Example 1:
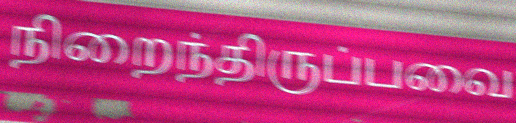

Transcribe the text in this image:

நிறைந்திருப்பவை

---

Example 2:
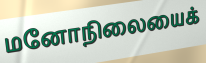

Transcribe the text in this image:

மனோநிலையைக்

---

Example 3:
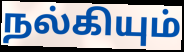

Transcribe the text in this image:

நல்கியும்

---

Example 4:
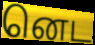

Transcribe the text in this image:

னெட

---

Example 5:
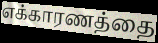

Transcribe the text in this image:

எக்காரணத்தை